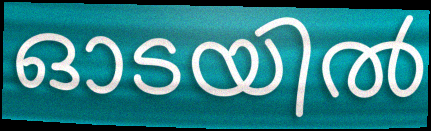
ഓടയിൽ